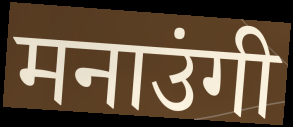
मनाउंगी